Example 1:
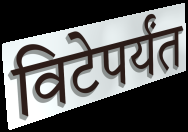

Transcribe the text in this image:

विटेपर्यंत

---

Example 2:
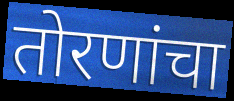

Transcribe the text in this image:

तोरणांचा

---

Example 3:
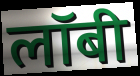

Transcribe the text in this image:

लॉबी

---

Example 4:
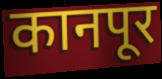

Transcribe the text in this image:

कानपूर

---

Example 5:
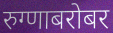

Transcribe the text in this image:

रुग्णाबरोबर